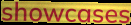
showcases